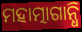
ମହାତ୍ମାଗାନ୍ଧି